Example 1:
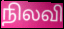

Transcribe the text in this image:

நிலவி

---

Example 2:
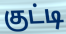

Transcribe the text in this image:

குட்டி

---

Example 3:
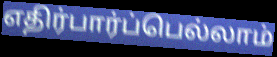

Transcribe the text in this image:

எதிர்பார்ப்பெல்லாம்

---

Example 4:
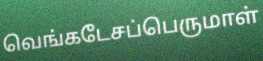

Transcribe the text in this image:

வெங்கடேசப்பெருமாள்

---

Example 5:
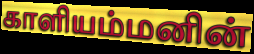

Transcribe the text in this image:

காளியம்மனின்